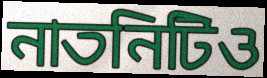
নাতনিটিও